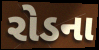
રોડના